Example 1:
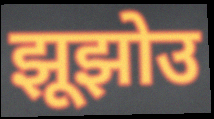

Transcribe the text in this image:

झूझोउ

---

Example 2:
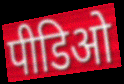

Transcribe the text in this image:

पीडिओ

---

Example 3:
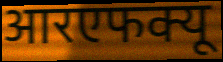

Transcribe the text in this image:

आरएफक्यू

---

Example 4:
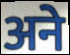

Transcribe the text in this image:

अने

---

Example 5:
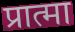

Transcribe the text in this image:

प्रात्मा